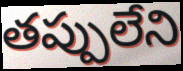
తప్పులేని